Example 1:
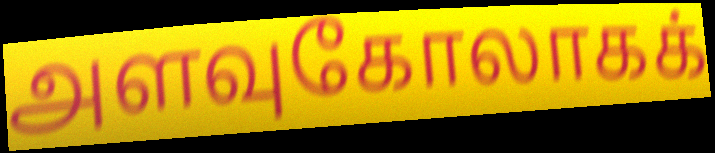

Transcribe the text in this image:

அளவுகோலாகக்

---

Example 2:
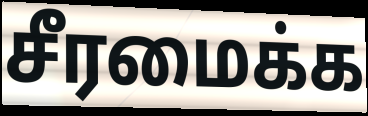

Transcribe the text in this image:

சீரமைக்க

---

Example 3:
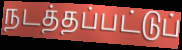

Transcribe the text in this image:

நடத்தப்பட்டுப்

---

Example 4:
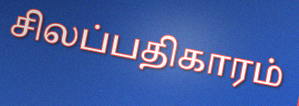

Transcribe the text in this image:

சிலப்பதிகாரம்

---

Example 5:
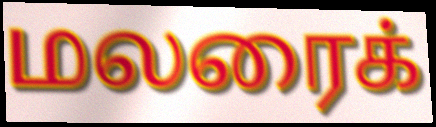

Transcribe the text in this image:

மலரைக்